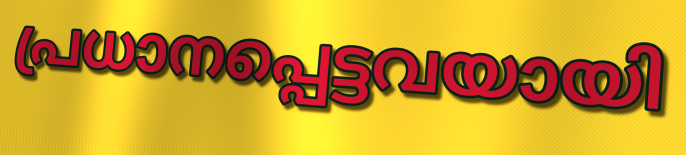
പ്രധാനപ്പെട്ടവയായി